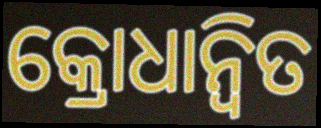
କ୍ରୋଧାନ୍ୱିତ